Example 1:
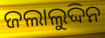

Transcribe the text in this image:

ଜଲାଲୁଦ୍ଦିନ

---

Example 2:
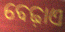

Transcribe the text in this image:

ବେଢ଼ାଏ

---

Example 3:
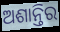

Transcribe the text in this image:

ଅଶାନ୍ତିର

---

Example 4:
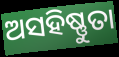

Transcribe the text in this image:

ଅସହିଷ୍ଣୁତା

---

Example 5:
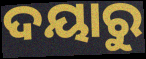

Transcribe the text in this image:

ଦୟାରୁ